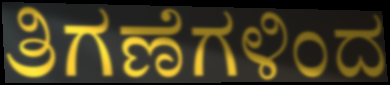
ತಿಗಣೆಗಳಿಂದ